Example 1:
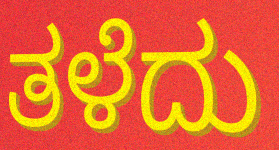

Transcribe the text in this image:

ತಳೆದು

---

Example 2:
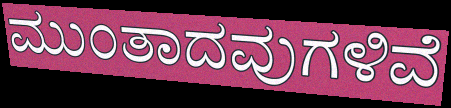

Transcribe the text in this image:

ಮುಂತಾದವುಗಳಿವೆ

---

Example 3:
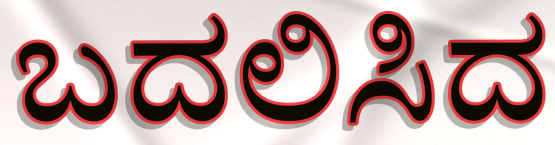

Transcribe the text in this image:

ಬದಲಿಸಿದ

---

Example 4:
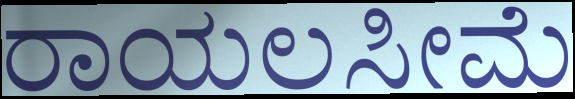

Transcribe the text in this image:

ರಾಯಲಸೀಮೆ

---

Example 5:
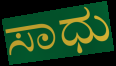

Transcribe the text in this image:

ಸಾಧು